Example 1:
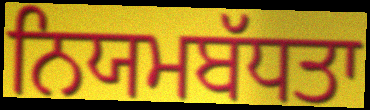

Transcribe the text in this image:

ਨਿਯਮਬੱਧਤਾ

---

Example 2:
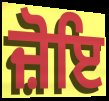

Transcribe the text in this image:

ਜ਼ੋਇ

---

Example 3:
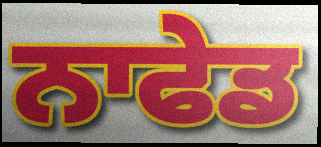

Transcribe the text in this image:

ਨਾਫੇਡ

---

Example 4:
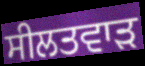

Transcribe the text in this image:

ਸੀਲਤਵਾੜ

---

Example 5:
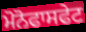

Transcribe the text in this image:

ਮੋਨੋਫਾਸਫੇਟ